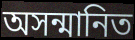
অসন্মানিত